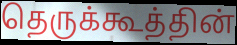
தெருக்கூத்தின்